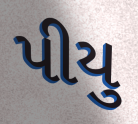
પીયુ